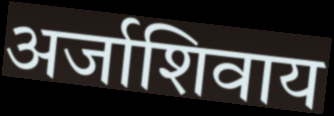
अर्जाशिवाय